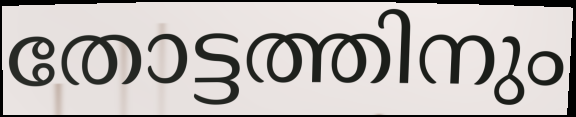
തോട്ടത്തിനും